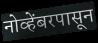
नोव्हेंबरपासून